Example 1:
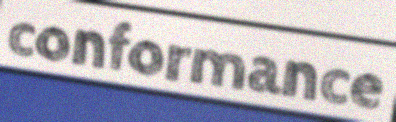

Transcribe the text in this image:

conformance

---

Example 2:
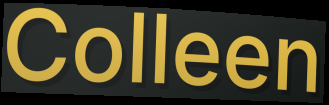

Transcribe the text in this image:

Colleen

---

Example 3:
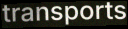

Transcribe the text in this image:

transports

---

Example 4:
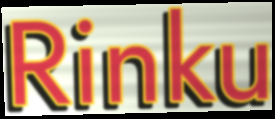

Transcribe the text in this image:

Rinku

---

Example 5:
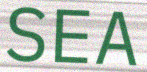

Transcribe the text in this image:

SEA